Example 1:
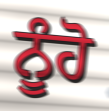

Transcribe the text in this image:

ਨੂੰਹੋ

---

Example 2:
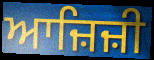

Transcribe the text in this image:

ਆਜ਼ਿਜ਼ੀ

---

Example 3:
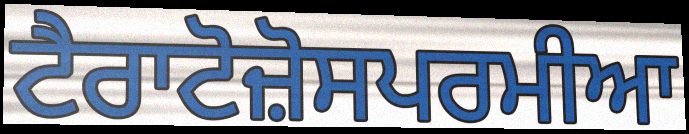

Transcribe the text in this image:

ਟੈਰਾਟੋਜ਼ੋਸਪਰਮੀਆ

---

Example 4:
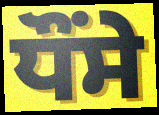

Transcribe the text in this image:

ਧੌਂਸੇ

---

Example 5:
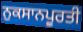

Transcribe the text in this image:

ਨੁਕਸਾਨਪੂਰਤੀ